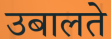
उबालते